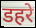
डहरे